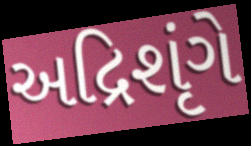
અદ્રિશૃંગે